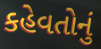
કહેવતોનું